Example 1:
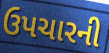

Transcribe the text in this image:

ઉપચારની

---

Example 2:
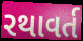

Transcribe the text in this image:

રથાવર્ત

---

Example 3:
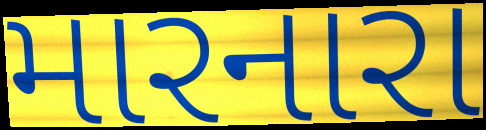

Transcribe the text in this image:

મારનારા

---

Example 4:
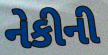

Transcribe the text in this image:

નેકીની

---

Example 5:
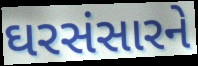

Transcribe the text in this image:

ઘરસંસારને